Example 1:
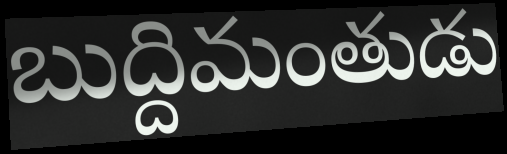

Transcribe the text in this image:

బుద్దిమంతుడు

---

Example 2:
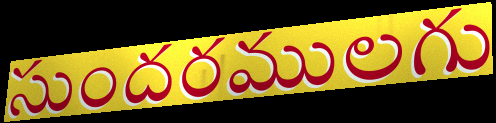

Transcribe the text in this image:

సుందరములగు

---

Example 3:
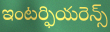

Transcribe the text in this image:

ఇంటర్ఫియరెన్స్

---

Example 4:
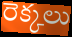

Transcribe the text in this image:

రెక్కలు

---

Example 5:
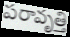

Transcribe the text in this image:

పరావృత్తి